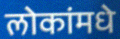
लोकांमधे